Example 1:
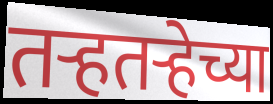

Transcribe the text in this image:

तऱ्हतऱ्हेच्या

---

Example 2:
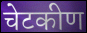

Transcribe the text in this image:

चेटकीण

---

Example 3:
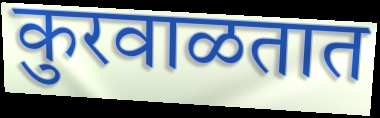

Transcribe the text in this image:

कुरवाळतात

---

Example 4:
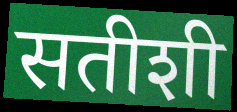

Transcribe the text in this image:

सतीशी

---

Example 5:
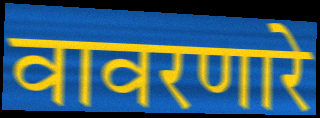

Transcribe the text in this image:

वावरणारे